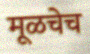
मूळचेच